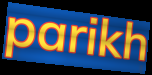
parikh